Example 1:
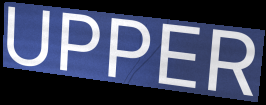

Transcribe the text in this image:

UPPER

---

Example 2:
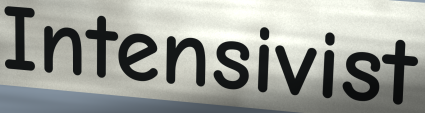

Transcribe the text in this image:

Intensivist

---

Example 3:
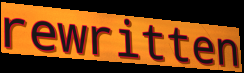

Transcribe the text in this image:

rewritten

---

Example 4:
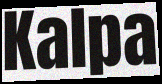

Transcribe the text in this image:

Kalpa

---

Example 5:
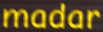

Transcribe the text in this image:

madar